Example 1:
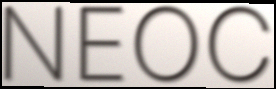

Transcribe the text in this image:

NEOC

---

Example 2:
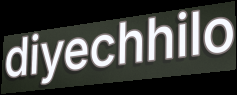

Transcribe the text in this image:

diyechhilo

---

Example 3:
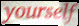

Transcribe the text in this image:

yourself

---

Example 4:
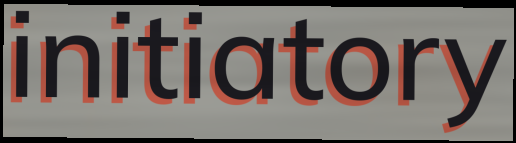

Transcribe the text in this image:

initiatory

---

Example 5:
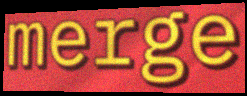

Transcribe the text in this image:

merge